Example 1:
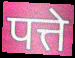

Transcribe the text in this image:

पत्ते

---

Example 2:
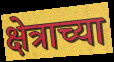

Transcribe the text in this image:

क्षेत्राच्या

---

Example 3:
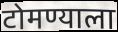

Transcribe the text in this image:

टोमण्याला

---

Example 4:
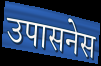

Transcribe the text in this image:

उपासनेस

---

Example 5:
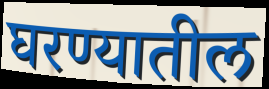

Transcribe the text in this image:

घरण्यातील